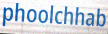
phoolchhab